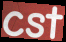
cst